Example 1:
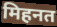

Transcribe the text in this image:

मिहनत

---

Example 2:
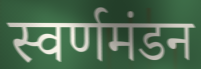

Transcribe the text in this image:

स्वर्णमंडन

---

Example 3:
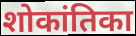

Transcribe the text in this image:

शोकांतिका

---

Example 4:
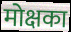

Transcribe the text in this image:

मोक्षका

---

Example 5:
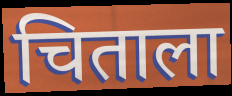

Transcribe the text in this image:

चिताला